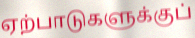
ஏற்பாடுகளுக்குப்